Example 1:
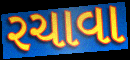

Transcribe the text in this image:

રચાવા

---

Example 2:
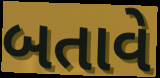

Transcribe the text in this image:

બતાવે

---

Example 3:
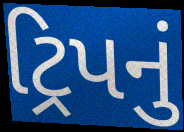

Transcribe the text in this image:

ટ્રિપનું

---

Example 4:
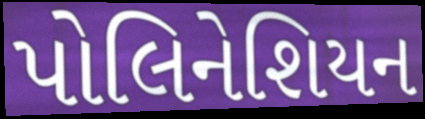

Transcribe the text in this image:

પોલિનેશિયન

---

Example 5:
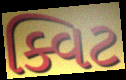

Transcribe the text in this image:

ક્વિટ